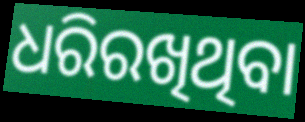
ଧରିରଖିଥିବା